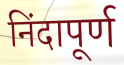
निंदापूर्ण